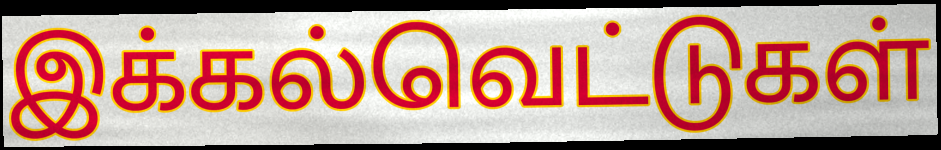
இக்கல்வெட்டுகள்